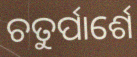
ଚତୁର୍ପାର୍ଶେ